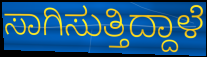
ಸಾಗಿಸುತ್ತಿದ್ದಾಳೆ